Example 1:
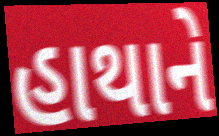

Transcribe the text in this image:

હાથાને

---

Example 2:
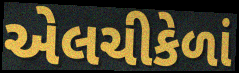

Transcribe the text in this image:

એલચીકેળાં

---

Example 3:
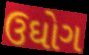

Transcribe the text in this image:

ઉઘોગ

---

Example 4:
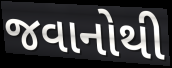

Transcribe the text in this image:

જવાનોથી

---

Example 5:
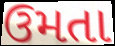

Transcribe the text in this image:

ઉમતા